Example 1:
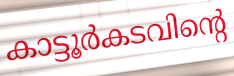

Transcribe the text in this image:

കാട്ടൂർകടവിന്റെ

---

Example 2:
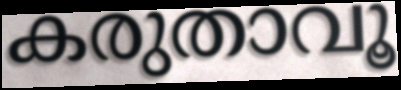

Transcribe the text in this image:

കരുതാവൂ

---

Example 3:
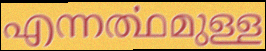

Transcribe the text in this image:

എന്നൎത്ഥമുള്ള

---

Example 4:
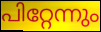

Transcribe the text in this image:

പിറ്റേന്നും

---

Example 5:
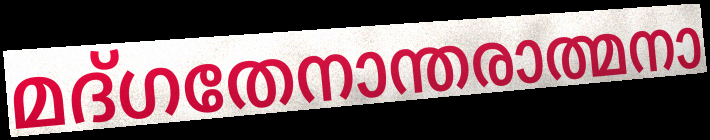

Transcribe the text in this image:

മദ്ഗതേനാന്തരാത്മനാ